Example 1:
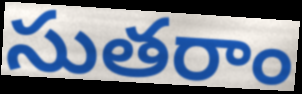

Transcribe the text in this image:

సుతరాం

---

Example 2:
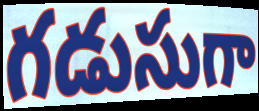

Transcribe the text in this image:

గడుసుగా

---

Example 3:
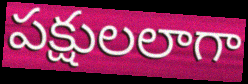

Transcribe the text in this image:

పక్షులలాగా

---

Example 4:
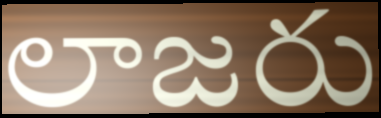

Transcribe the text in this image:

లాజరు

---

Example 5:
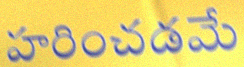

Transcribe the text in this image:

హరించడమే